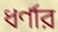
ধর্ণার